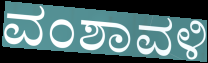
ವಂಶಾವಳಿ